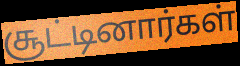
சூட்டினார்கள்